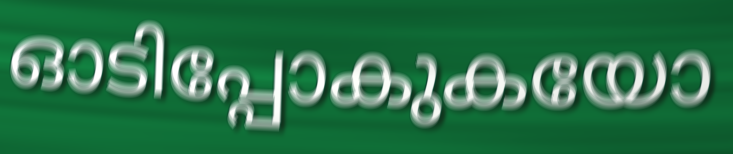
ഓടിപ്പോകുകയോ